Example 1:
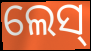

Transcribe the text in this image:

ଲେସ୍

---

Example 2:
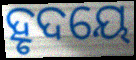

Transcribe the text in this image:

ହୃଦୟେ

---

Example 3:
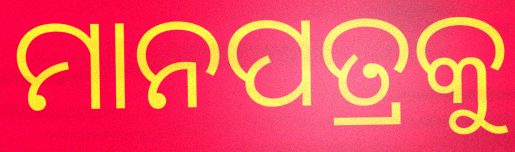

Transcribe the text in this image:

ମାନପତ୍ରକୁ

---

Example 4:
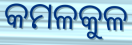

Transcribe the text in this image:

କମଳକୁଳ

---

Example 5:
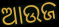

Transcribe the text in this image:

ଆଉଜ